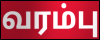
வரம்பு